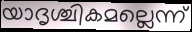
യാദൃശ്ചികമല്ലെന്ന്